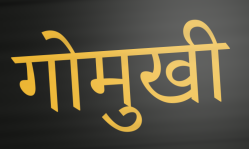
गोमुखी